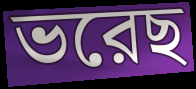
ভরেছ